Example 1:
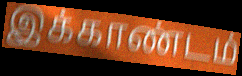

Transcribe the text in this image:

இக்காண்டம்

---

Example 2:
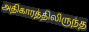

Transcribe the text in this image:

அதிகாரத்திலிருந்த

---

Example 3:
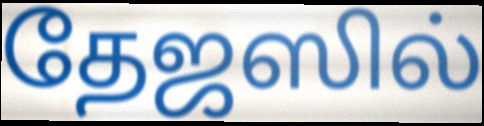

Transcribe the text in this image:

தேஜஸில்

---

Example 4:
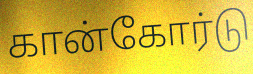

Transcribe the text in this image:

கான்கோர்டு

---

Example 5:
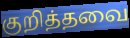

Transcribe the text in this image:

குறித்தவை